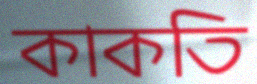
কাকতি